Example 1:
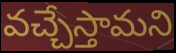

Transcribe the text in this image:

వచ్చేస్తామని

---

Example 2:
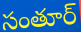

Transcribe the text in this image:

సంతూర్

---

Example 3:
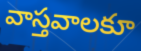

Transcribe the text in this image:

వాస్తవాలకూ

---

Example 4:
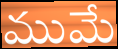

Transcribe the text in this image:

ముమే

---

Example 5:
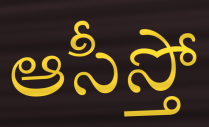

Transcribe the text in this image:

ఆసీస్తో